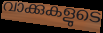
വാക്കുകളുടെ